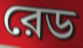
রেড